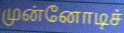
முன்னோடிச்